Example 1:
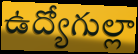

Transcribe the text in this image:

ఉద్యోగుల్లా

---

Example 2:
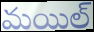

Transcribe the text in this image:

మయిల్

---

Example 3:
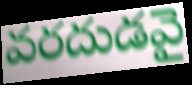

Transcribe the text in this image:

వరదుడవై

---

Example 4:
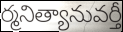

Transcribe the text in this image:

ర్మనిత్యానువర్తీ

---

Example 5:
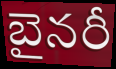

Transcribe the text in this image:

బైనరీ